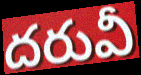
దరువీ